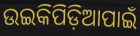
ଉଇକିପିଡ଼ିଆପାଇଁ